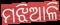
ମଝିଆଳି